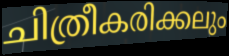
ചിത്രീകരിക്കലും